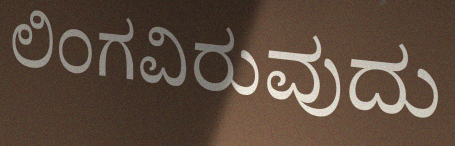
ಲಿಂಗವಿರುವುದು